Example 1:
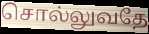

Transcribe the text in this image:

சொல்லுவதே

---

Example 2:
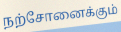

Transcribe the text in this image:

நற்சோனைக்கும்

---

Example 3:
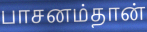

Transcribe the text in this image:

பாசனம்தான்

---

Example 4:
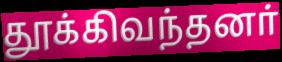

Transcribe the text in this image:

தூக்கிவந்தனர்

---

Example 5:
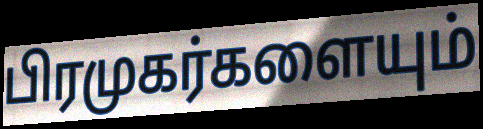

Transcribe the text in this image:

பிரமுகர்களையும்